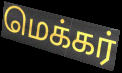
மெக்கர்